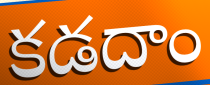
కడదాం